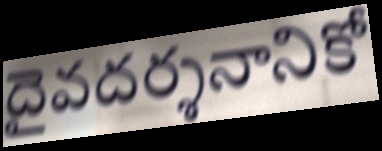
దైవదర్శనానికో